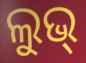
ଲୁଭ୍